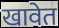
खावेत